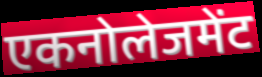
एकनोलेजमेंट